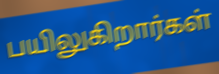
பயிலுகிறார்கள்